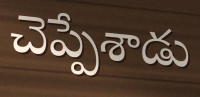
చెప్పేశాడు